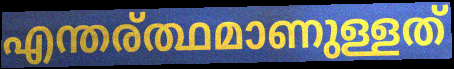
എന്തര്ത്ഥമാണുള്ളത്